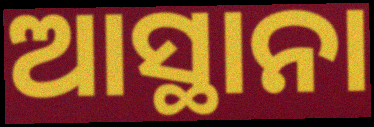
ଆସ୍ଥାନା